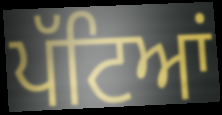
ਪੱਟਿਆਂ